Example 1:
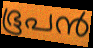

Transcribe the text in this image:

ഭൂപൻ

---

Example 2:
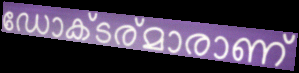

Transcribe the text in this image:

ഡോക്ടര്മാരാണ്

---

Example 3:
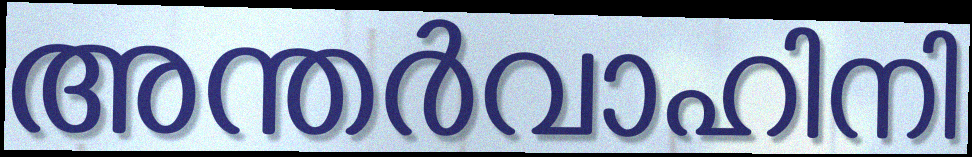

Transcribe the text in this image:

അന്തർവാഹിനി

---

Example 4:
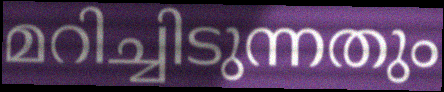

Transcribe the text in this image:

മറിച്ചിടുന്നതും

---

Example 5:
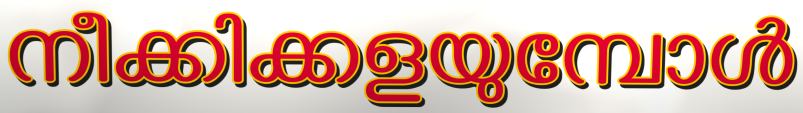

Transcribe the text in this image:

നീക്കിക്കളയുമ്പോൾ